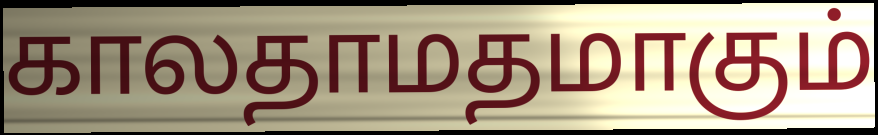
காலதாமதமாகும்